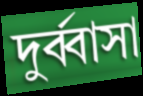
দুর্ব্বাসা